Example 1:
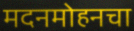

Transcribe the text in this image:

मदनमोहनचा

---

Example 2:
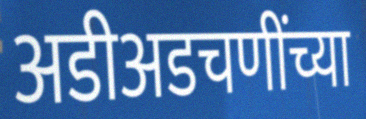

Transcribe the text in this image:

अडीअडचणींच्या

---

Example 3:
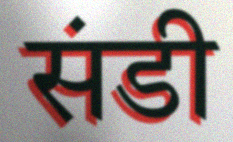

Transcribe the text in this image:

संडी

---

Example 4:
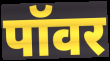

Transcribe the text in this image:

पॉवर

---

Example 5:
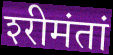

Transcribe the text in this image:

श्रीमंतां